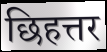
छिहत्तर